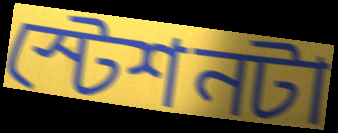
স্টেশনটা